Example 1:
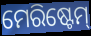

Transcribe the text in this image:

ମେରିଷ୍ଟେମ୍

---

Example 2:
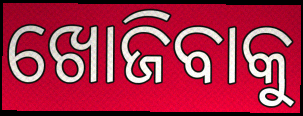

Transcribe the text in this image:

ଖୋଜିବାକୁ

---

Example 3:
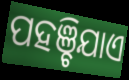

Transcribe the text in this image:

ପହଞ୍ଚିଯାଏ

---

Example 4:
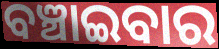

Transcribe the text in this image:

ବଞ୍ଚାଇବାର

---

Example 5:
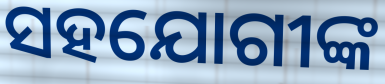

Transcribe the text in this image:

ସହଯୋଗୀଙ୍କ